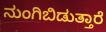
ನುಂಗಿಬಿಡುತ್ತಾರೆ